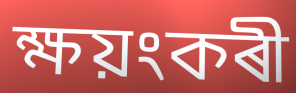
ক্ষয়ংকৰী